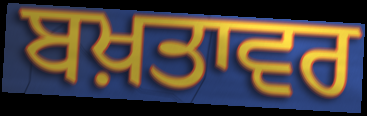
ਬਖ਼ਤਾਵਰ